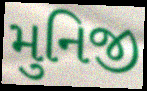
મુનિજી